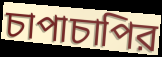
চাপাচাপির